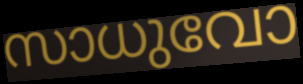
സാധുവോ